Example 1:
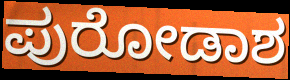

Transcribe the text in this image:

ಪುರೋಡಾಶ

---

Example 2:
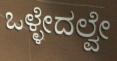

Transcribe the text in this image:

ಒಳ್ಳೇದಲ್ವೇ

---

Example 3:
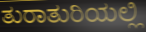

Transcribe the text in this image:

ತುರಾತುರಿಯಲ್ಲಿ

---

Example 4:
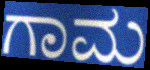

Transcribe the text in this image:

ಗಾಮ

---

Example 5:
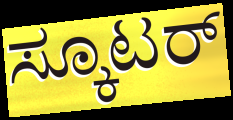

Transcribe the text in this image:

ಸ್ಕೂಟರ್